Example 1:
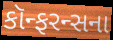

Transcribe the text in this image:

કૉન્ફરન્સના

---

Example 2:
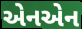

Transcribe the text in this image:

એનએન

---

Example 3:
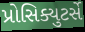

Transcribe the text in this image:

પ્રોસિક્યુટર્સે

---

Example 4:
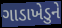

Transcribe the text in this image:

ગાડાખેડુને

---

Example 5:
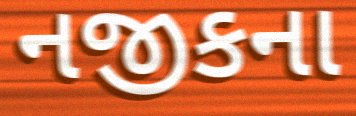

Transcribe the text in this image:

નજીકના